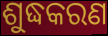
ଶୁଦ୍ଧକରଣ